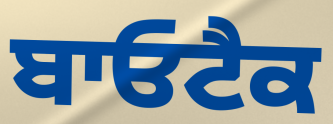
ਬਾਓਟੈਕ